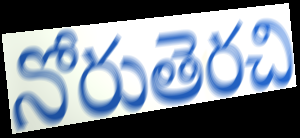
నోరుతెరచి